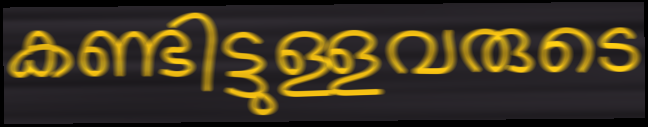
കണ്ടിട്ടുള്ളവരുടെ